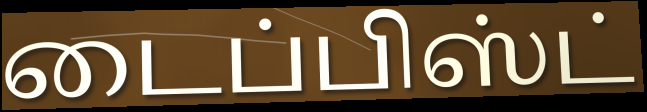
டைப்பிஸ்ட்